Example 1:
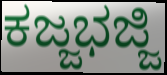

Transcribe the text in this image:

ಕಜ್ಜಭಜ್ಜಿ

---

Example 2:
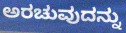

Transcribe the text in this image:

ಅರಚುವುದನ್ನು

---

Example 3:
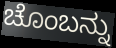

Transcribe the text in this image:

ಚೊಂಬನ್ನು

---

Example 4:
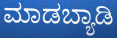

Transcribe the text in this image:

ಮಾಡಬ್ಯಾಡಿ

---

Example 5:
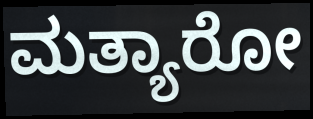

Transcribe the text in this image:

ಮತ್ಯಾರೋ